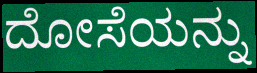
ದೋಸೆಯನ್ನು